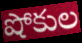
షోకుల